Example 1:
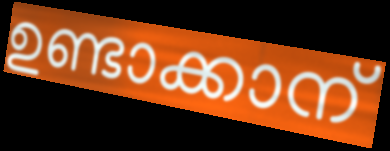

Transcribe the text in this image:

ഉണ്ടാക്കാന്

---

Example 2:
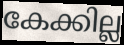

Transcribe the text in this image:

കേക്കില്ല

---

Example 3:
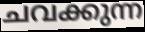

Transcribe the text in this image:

ചവക്കുന്ന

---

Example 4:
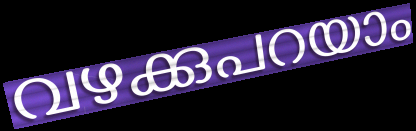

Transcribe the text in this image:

വഴക്കുപറയാം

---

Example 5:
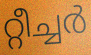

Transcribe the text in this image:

റ്റീച്ചർ